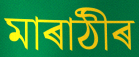
মাৰাঠীৰ